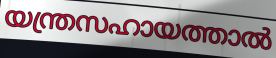
യന്ത്രസഹായത്താൽ